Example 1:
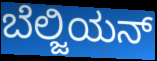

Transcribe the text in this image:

ಬೆಲ್ಜಿಯನ್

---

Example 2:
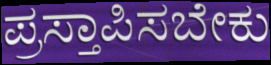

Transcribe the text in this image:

ಪ್ರಸ್ತಾಪಿಸಬೇಕು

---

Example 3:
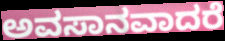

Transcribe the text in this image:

ಅವಸಾನವಾದರೆ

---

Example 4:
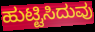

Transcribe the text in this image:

ಹುಟ್ಟಿಸಿದುವು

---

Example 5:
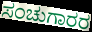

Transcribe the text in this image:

ಸಂಚುಗಾರರ